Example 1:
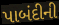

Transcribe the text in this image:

પાબંદીની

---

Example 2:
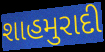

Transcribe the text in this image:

શાહમુરાદી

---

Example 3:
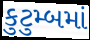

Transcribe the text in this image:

કુટુમ્બમાં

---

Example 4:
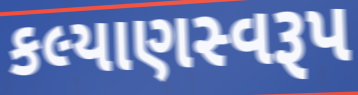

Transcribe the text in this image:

કલ્યાણસ્વરૂપ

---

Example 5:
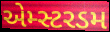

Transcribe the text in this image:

એમ્સ્ટરડમ